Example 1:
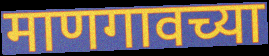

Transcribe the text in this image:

माणगावच्या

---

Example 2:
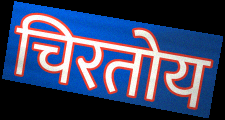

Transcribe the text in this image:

चिरतोय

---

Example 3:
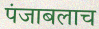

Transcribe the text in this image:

पंजाबलाच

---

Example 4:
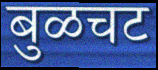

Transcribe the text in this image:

बुळचट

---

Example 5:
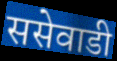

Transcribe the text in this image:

ससेवाडी